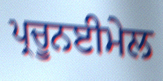
ਪ੍ਰਚੂਨਈਮੇਲ